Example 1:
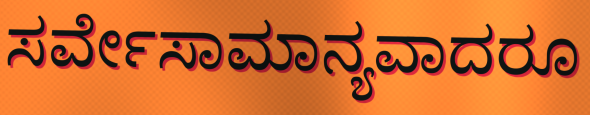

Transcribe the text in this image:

ಸರ್ವೇಸಾಮಾನ್ಯವಾದರೂ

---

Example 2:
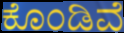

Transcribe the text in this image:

ಕೊಂಡಿವೆ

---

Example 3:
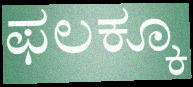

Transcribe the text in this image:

ಫಲಕ್ಕೂ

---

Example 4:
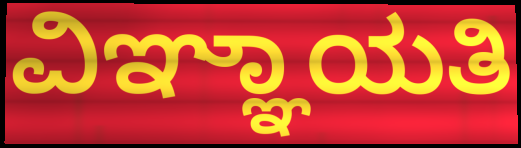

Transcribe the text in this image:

ವಿಞ್ಞಾಯತಿ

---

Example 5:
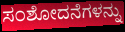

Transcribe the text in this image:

ಸಂಶೋದನೆಗಳನ್ನು